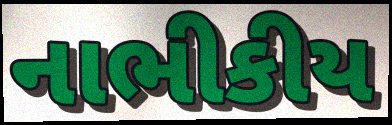
નાભીકીય